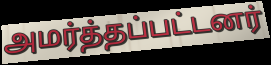
அமர்த்தப்பட்டனர்